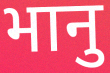
भानु